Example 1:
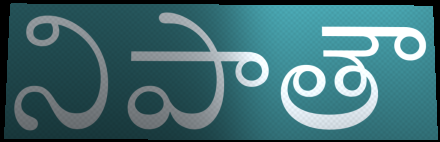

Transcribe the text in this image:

నిపాతౌ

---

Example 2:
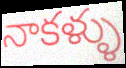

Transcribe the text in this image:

నాకళ్ళు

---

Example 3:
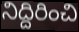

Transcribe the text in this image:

నిద్దిరించి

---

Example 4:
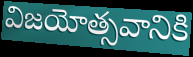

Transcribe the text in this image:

విజయోత్సవానికి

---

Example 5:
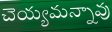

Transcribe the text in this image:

చెయ్యమన్నావు